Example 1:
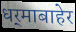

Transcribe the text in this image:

धर्माबाहेर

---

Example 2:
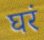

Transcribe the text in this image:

घरं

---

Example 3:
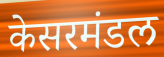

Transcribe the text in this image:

केसरमंडल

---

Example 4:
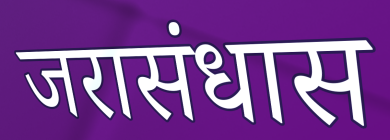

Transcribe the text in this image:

जरासंधास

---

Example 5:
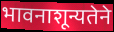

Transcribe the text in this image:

भावनाशून्यतेने